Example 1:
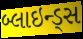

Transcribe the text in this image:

બ્લાઇન્ડ્સ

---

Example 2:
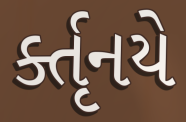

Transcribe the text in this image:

ર્ક્તૃનયે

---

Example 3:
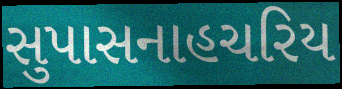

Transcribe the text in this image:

સુપાસનાહચરિય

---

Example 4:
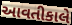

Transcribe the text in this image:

આવતીકાલે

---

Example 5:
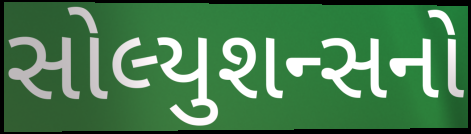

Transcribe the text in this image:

સોલ્યુશન્સનો